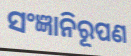
ସଂଜ୍ଞାନିରୂପଣ